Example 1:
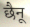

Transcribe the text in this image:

छैनू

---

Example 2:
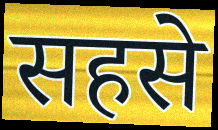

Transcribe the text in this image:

सहसे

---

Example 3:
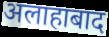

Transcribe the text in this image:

अलाहाबाद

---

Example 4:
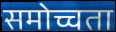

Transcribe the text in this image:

समोच्चता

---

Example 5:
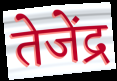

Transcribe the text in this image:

तेजेंद्र